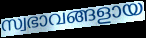
സ്വഭാവങ്ങളായ